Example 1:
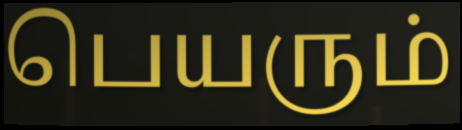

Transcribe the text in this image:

பெயரும்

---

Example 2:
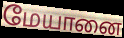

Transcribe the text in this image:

மேயானை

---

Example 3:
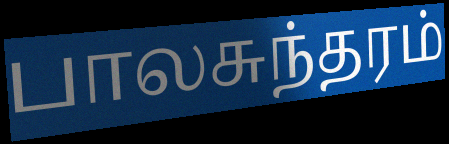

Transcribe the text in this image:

பாலசுந்தரம்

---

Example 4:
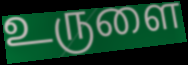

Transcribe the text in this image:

உருளை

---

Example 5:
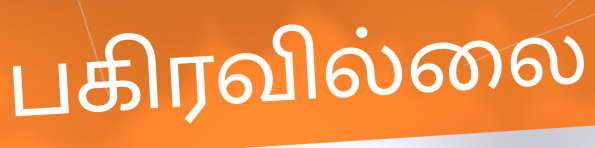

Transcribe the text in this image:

பகிரவில்லை